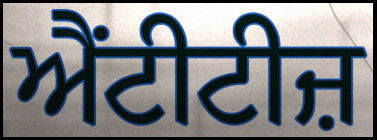
ਐਂਟੀਟੀਜ਼